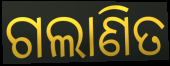
ଗଲାଣିତ